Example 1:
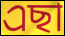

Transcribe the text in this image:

এছা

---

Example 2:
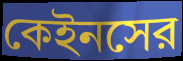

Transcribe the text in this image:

কেইনসের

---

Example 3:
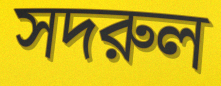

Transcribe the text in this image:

সদরুল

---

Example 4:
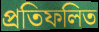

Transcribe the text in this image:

প্রতিফলিত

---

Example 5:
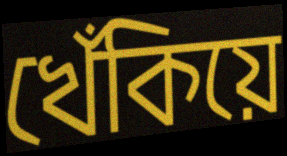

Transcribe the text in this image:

খেঁকিয়ে